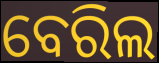
ବେରିଲ